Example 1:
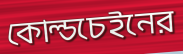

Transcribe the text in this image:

কোল্ডচেইনের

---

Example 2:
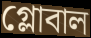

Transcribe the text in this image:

গ্লোবাল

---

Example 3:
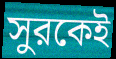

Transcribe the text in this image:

সুরকেই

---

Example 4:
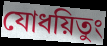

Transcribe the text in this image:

যোধয়িতুং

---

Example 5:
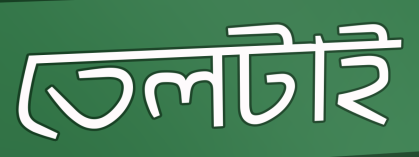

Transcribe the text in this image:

তেলটাই